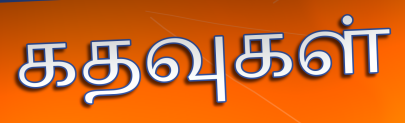
கதவுகள்